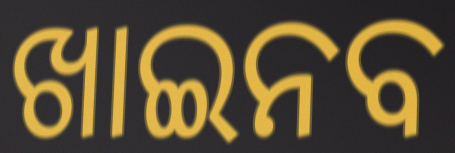
ଖାଇନବ